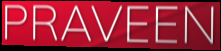
PRAVEEN